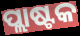
ପ୍ଲାଷ୍ଟକ